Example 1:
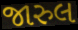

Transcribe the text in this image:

જારુલ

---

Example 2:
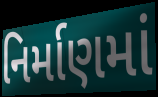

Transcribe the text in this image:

નિર્માણમાં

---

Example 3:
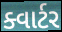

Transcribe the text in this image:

ક્વાર્ટર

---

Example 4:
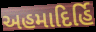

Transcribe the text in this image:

અહમાદિર્હિ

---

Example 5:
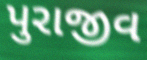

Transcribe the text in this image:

પુરાજીવ